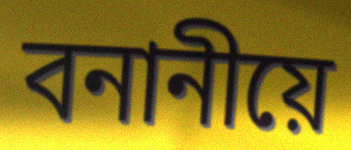
বনানীয়ে